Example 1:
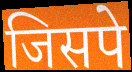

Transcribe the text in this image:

जिसपे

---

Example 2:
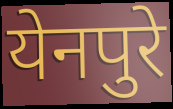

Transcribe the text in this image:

येनपुरे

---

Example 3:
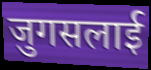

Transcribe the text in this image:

जुगसलाई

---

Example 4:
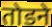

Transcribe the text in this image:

तोडने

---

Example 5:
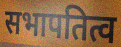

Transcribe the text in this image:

सभापतित्व